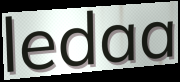
ledaa